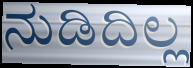
ನುಡಿದಿಲ್ಲ